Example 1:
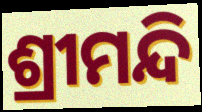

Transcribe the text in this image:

ଶ୍ରୀମନ୍ଦି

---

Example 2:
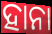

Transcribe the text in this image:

ହାନା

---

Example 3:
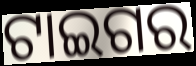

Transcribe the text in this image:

ଟାଇଗର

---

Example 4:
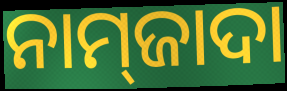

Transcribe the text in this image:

ନାମ୍‌ଜାଦା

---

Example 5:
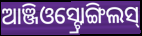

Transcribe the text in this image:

ଆଞ୍ଜିଓସ୍ଟ୍ରୋଙ୍ଗିଲସ୍